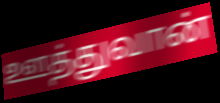
ஊத்துவான்